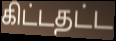
கிட்டதட்ட